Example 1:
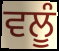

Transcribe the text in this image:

ਵਲੂੰ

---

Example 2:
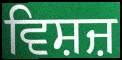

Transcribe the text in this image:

ਵਿਸ਼ਜ਼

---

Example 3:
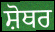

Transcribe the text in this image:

ਸ਼ੋਥਰ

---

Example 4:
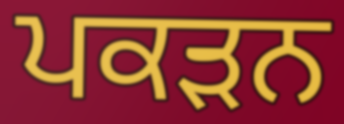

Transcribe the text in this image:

ਪਕੜਨ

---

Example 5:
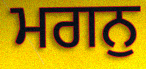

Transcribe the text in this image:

ਮਗਨੁ